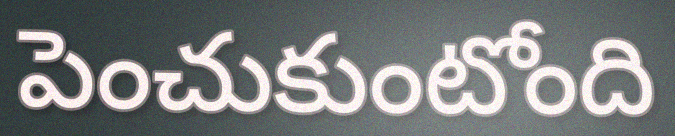
పెంచుకుంటోంది